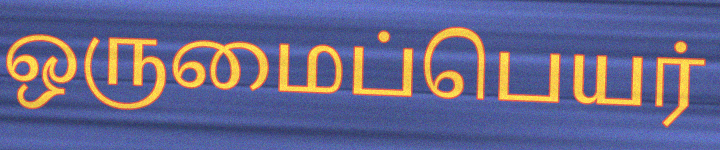
ஒருமைப்பெயர்